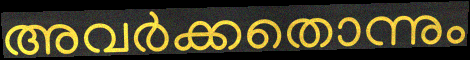
അവർക്കതൊന്നും